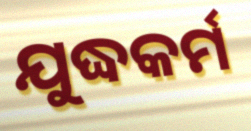
ଯୁଦ୍ଧକର୍ମ